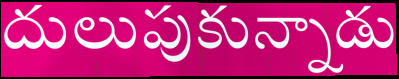
దులుపుకున్నాడు